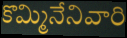
కొమ్మినేనివారి